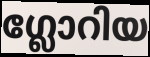
ഗ്ലോറിയ